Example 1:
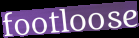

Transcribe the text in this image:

footloose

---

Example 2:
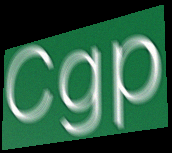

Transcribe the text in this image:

Cgp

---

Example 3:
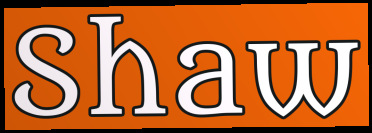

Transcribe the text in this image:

Shaw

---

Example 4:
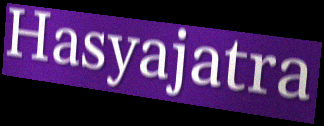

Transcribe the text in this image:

Hasyajatra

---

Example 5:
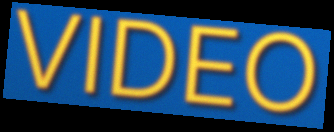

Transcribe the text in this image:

VIDEO